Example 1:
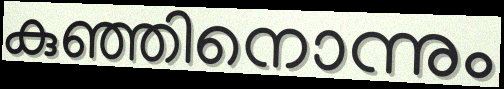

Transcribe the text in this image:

കുഞ്ഞിനൊന്നും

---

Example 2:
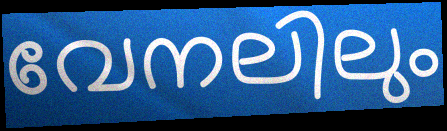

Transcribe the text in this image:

വേനലിലും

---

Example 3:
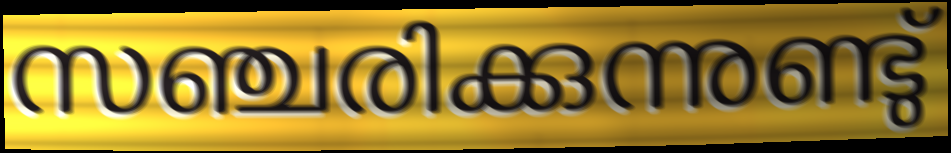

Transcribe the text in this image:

സഞ്ചരിക്കുന്നുണ്ടു്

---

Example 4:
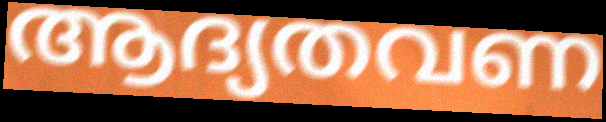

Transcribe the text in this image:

ആദ്യതവണ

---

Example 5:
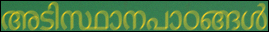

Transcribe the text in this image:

അടിസ്ഥാനപാഠങ്ങൾ